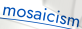
mosaicism